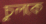
চুলকে